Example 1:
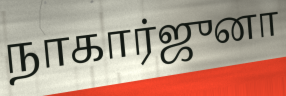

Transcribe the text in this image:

நாகார்ஜுனா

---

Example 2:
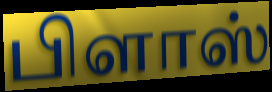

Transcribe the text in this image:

பிளாஸ்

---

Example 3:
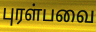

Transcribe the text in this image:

புரள்பவை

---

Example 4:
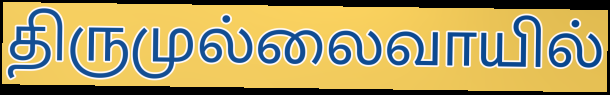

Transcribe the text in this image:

திருமுல்லைவாயில்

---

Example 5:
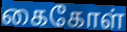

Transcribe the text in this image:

கைகோள்